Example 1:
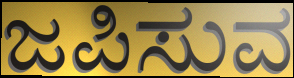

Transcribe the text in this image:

ಜಪಿಸುವ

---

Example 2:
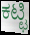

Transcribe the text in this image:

ಕಟ್ಟಿ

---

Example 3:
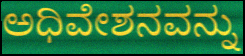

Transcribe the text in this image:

ಅಧಿವೇಶನವನ್ನು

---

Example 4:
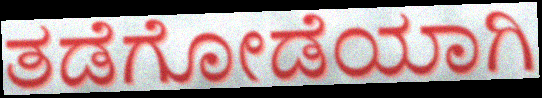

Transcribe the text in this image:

ತಡೆಗೋಡೆಯಾಗಿ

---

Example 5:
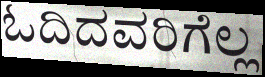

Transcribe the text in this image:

ಓದಿದವರಿಗೆಲ್ಲ